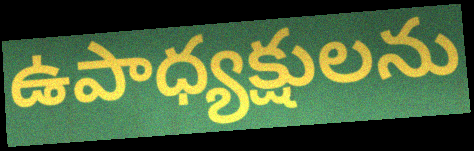
ఉపాధ్యక్షులను